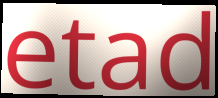
etad